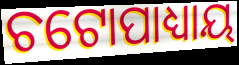
ଚଟୋପାଧ୍ୟାୟ